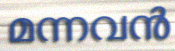
മന്നവൻ